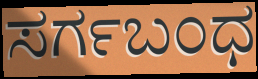
ಸರ್ಗಬಂಧ